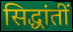
सिद्धांतीं